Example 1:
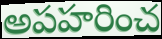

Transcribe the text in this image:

అపహరించ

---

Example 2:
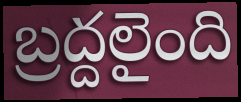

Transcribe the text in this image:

బ్రద్దలైంది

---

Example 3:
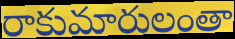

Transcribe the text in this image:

రాకుమారులంతా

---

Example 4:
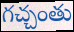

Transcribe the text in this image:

గచ్చంతు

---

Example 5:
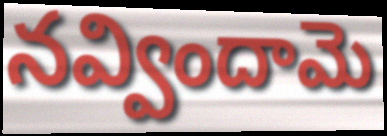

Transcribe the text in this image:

నవ్విందామె